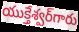
యుక్తేశ్వర్‌గారు